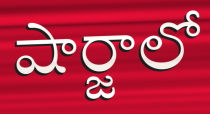
షార్జాలో